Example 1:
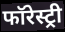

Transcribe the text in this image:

फॉरेस्ट्री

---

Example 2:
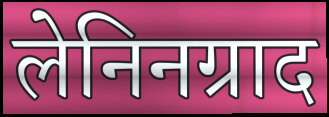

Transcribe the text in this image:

लेनिनग्राद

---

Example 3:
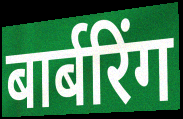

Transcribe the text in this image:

बार्बरिंग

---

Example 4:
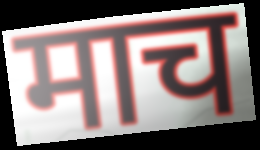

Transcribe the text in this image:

माच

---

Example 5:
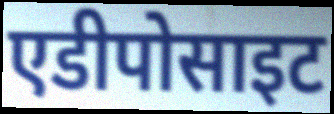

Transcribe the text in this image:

एडीपोसाइट